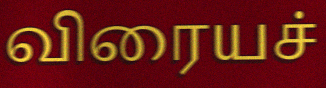
விரையச்